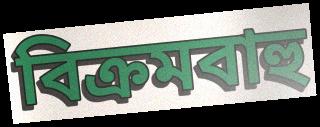
বিক্রমবাহু